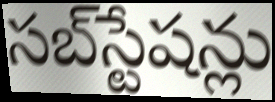
సబ్‌స్టేషన్లు